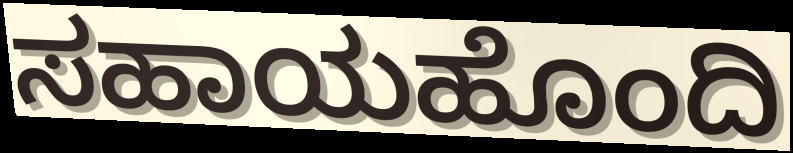
ಸಹಾಯಹೊಂದಿ